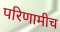
परिणामीच